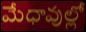
మేధావుల్లో